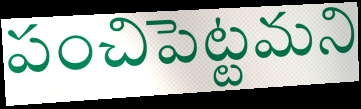
పంచిపెట్టమని